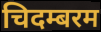
चिदम्बरम